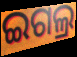
ଇଗଲ୍ର